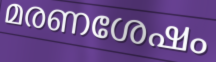
മരണശേഷം